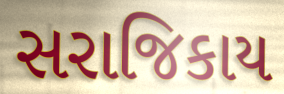
સરાજિકાય